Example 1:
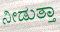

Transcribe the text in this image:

ನೀಡುತ್ತಾ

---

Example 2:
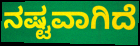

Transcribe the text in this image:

ನಷ್ಟವಾಗಿದೆ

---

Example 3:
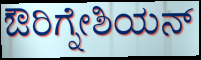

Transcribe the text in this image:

ಔರಿಗ್ನೇಶಿಯನ್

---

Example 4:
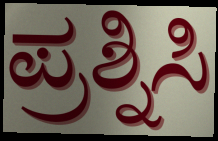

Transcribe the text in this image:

ಪ್ರಶ್ನಿಸಿ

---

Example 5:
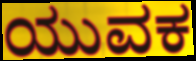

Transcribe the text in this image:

ಯುವಕ